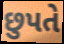
છુપતે